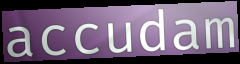
accudam